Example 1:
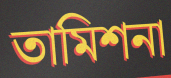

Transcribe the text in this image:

তামিশনা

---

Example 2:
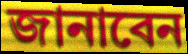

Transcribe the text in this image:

জানাবেন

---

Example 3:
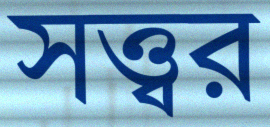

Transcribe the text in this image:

সত্ত্বর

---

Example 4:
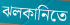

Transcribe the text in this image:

ঝলকানিতে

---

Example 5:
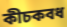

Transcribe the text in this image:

কীচকবধ